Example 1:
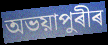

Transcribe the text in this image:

অভয়াপুৰীৰ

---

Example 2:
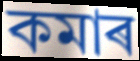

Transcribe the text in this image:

কমাৰ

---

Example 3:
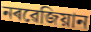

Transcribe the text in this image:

নৰৱেজিয়ান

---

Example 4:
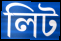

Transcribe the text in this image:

লিট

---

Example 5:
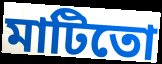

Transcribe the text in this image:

মাটিতো